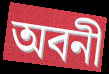
অবনী